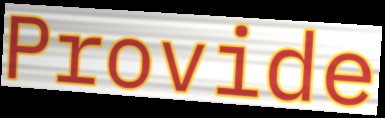
Provide